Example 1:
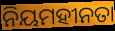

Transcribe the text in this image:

ନିୟମହୀନତା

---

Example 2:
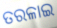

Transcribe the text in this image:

ତରଳାଇ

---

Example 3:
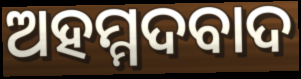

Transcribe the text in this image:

ଅହମ୍ମଦବାଦ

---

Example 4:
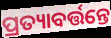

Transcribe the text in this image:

ପ୍ରତ୍ୟାବର୍ତ୍ତନ୍ତେ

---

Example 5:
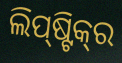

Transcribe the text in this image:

ଲିପ୍‌ଷ୍ଟିକ୍‌ର